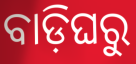
ବାଡ଼ିଘରୁ